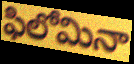
ఫిలోమినా